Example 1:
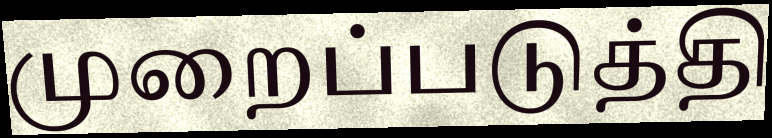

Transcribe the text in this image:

முறைப்படுத்தி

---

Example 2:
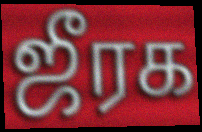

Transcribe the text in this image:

ஜீரக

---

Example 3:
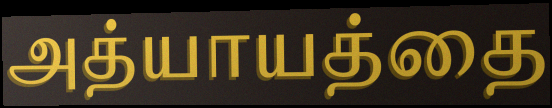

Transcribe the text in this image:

அத்யாயத்தை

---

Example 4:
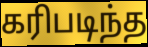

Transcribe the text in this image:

கரிபடிந்த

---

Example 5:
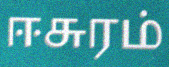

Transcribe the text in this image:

ஈசுரம்